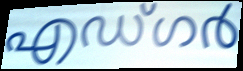
എഡ്ഗർ